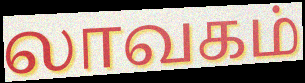
லாவகம்